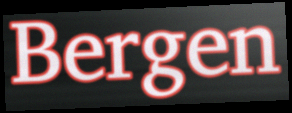
Bergen